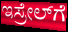
ಇಸ್ರೇಲ್‍ಗೆ